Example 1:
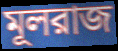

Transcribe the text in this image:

মূলরাজ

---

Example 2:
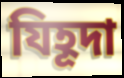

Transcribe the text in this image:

যিহূদা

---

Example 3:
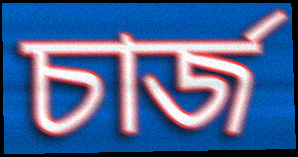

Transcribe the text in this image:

চার্জ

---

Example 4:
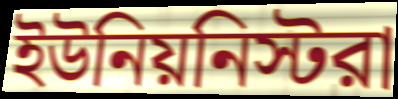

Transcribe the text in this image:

ইউনিয়নিস্টরা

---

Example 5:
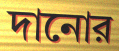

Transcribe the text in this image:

দানোর